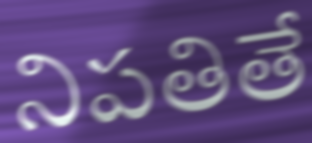
నిపతితే